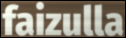
faizulla